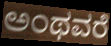
ಅಂಥವರೆ